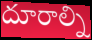
దూరాల్ని